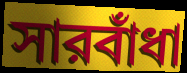
সারবাঁধা